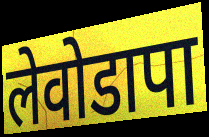
लेवोडापा